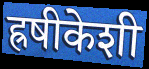
ह्रषीकेशी